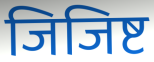
जिजिष्ट